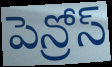
పెన్రోస్